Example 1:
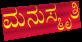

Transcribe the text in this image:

ಮನುಸ್ಮೃತಿ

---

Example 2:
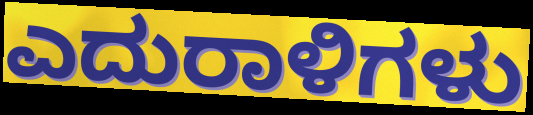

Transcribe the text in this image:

ಎದುರಾಳಿಗಳು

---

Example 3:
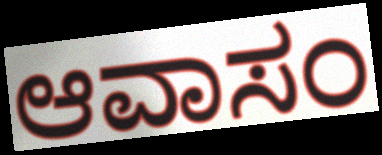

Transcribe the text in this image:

ಆವಾಸಂ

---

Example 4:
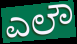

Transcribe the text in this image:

ಎಲೌ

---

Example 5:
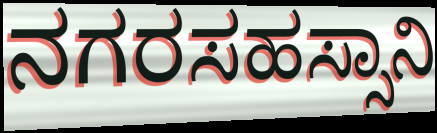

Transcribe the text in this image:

ನಗರಸಹಸ್ಸಾನಿ